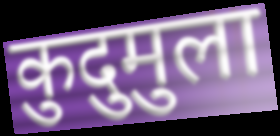
कुदुमुला